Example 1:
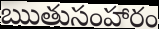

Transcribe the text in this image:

ఋతుసంహారం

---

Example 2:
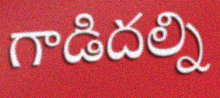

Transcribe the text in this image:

గాడిదల్ని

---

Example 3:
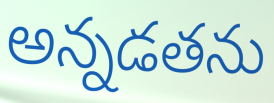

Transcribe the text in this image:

అన్నడతను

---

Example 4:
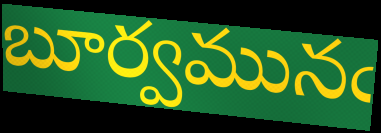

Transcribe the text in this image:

బూర్వమునఁ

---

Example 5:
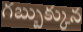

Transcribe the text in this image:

గబ్బుక్కున